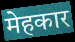
मेहकार